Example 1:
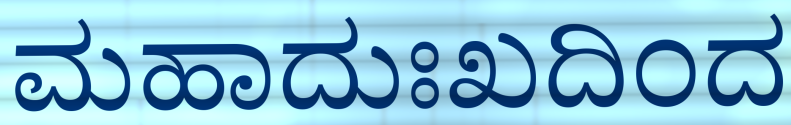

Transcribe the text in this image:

ಮಹಾದುಃಖದಿಂದ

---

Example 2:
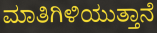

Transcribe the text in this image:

ಮಾತಿಗಿಳಿಯುತ್ತಾನೆ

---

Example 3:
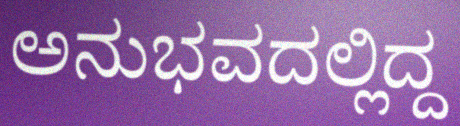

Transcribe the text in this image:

ಅನುಭವದಲ್ಲಿದ್ದ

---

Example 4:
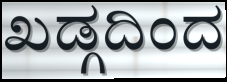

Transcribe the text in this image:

ಖಡ್ಗದಿಂದ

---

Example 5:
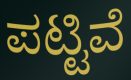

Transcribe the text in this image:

ಪಟ್ಟಿವೆ